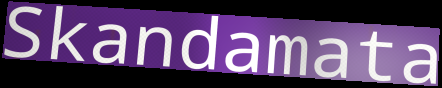
Skandamata